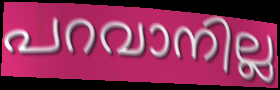
പറവാനില്ല